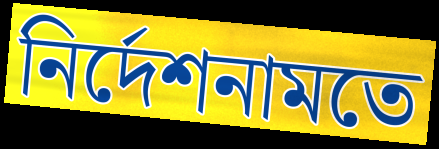
নির্দেশনামতে